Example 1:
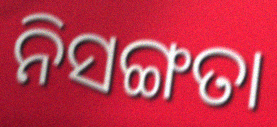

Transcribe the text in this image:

ନିସଙ୍ଗତା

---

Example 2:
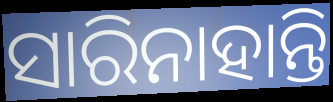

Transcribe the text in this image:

ସାରିନାହାନ୍ତି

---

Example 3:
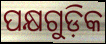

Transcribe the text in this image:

ପକ୍ଷଗୁଡ଼ିକ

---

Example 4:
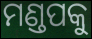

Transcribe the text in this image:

ମଣ୍ଡପକୁ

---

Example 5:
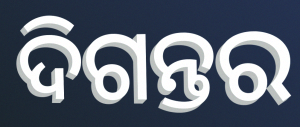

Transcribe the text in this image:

ଦିଗନ୍ତର